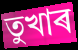
তুখাৰ